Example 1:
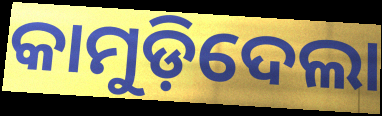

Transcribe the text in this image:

କାମୁଡ଼ିଦେଲା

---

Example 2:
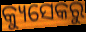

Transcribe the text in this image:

କ୍ୟୁସେକରୁ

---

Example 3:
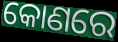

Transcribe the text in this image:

କୋଣରେ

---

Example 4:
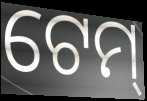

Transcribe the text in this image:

ଟେମ୍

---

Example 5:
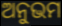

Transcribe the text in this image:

ଅନୁଭମ